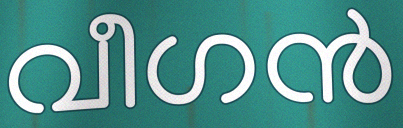
വീഗൻ